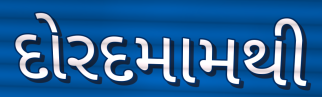
દોરદમામથી